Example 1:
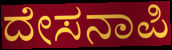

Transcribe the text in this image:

ದೇಸನಾಪಿ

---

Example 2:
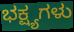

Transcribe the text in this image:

ಭಕ್ಷ್ಯಗಳು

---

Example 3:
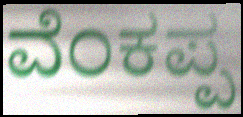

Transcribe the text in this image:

ವೆಂಕಪ್ಪ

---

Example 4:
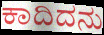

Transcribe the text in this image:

ಕಾದಿದನು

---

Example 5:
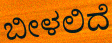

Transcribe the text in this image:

ಬೀಳಲಿದೆ